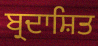
ਬ੍ਰਦਾਸ਼ਿਤ